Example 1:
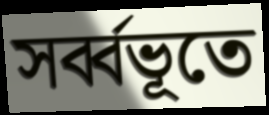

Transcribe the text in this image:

সর্ব্বভূতে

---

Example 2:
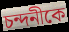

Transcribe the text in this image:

চন্দনীকে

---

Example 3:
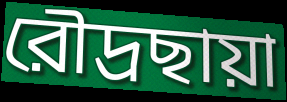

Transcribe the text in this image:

রৌদ্রছায়া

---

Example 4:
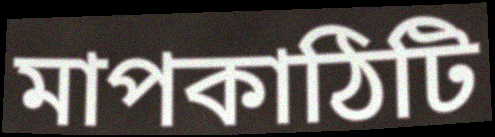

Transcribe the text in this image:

মাপকাঠিটি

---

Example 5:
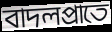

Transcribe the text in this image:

বাদলপ্রাতে